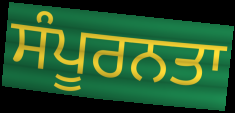
ਸੰਪੂਰਨਤਾ